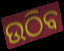
ଉଠିବ